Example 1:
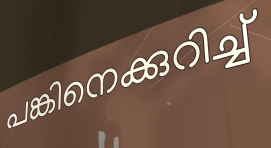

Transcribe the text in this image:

പങ്കിനെക്കുറിച്ച്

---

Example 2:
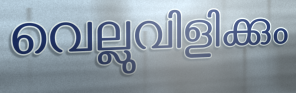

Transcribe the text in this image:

വെല്ലുവിളിക്കും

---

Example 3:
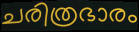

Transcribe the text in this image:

ചരിത്രഭാരം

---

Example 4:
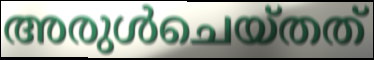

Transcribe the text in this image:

അരുൾചെയ്തത്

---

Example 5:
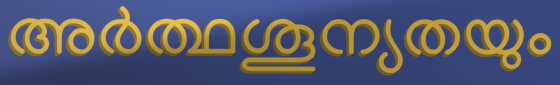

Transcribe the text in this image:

അർത്ഥശൂന്യതയും